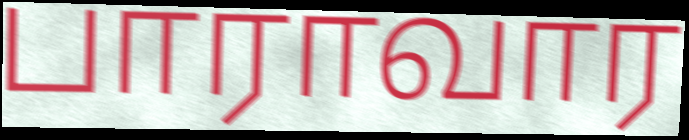
பாராவார